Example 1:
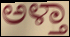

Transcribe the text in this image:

ಅಳ್ತಾ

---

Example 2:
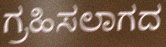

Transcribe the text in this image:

ಗ್ರಹಿಸಲಾಗದ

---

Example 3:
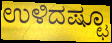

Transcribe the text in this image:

ಉಳಿದಷ್ಟೂ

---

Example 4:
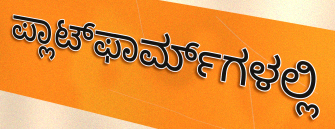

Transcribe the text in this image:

ಪ್ಲಾಟ್‌ಫಾರ್ಮ್‌ಗಳಲ್ಲಿ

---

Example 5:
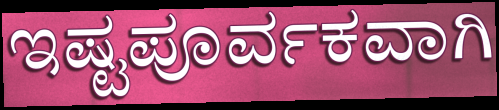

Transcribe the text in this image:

ಇಷ್ಟಪೂರ್ವಕವಾಗಿ